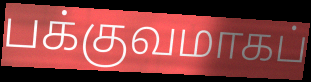
பக்குவமாகப்